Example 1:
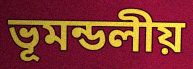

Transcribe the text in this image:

ভূমন্ডলীয়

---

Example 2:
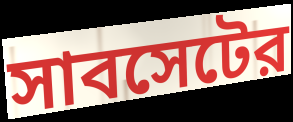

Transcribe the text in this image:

সাবসেটের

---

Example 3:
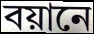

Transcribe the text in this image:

বয়ানে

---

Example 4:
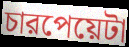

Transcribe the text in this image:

চারপেয়েটা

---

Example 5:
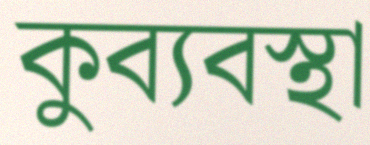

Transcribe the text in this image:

কুব্যবস্থা